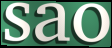
sao